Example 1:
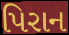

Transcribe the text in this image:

પિરાન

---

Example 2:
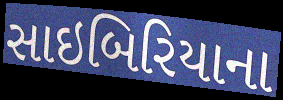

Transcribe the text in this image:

સાઇબિરિયાના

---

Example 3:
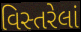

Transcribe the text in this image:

વિસ્તરેલાં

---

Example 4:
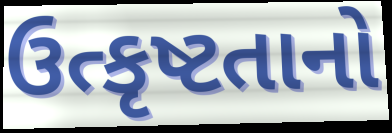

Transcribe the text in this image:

ઉત્કૃષ્ટતાનો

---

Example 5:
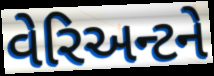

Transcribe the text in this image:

વેરિઅન્ટને